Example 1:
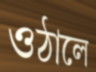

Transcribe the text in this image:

ওঠালে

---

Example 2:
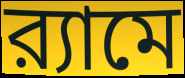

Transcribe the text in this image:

র‍্যামে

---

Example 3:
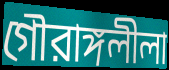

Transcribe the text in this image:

গৌরাঙ্গলীলা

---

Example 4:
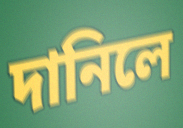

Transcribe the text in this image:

দানিলে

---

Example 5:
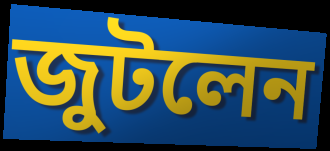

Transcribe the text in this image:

জুটলেন